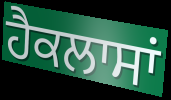
ਹੈਕਲਾਸਾਂ